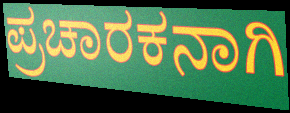
ಪ್ರಚಾರಕನಾಗಿ